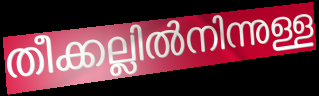
തീക്കല്ലിൽനിന്നുള്ള